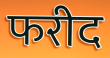
फरीद